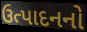
ઉત્પાદનનો